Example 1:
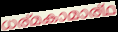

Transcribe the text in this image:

ധര്മകാമാര്ഥ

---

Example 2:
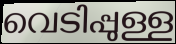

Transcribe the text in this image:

വെടിപ്പുള്ള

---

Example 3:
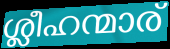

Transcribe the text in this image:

ശ്ലീഹന്മാര്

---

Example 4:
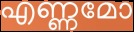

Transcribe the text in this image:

എണ്ണമോ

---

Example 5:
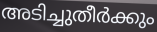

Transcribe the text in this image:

അടിച്ചുതീർക്കും